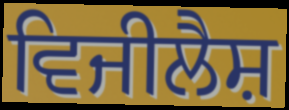
ਵਿਜੀਲੈਸ਼